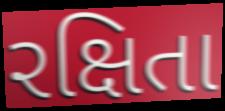
રક્ષિતા